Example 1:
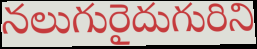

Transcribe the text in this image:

నలుగురైదుగురిని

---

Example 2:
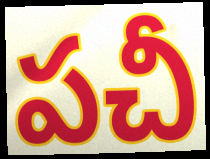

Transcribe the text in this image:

పచీ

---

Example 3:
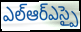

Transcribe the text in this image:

ఎల్ఆర్ఎస్పై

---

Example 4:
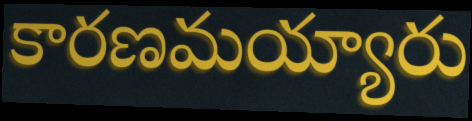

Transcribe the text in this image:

కారణమయ్యారు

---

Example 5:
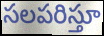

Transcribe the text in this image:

సలపరిస్తూ